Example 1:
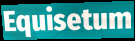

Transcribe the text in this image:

Equisetum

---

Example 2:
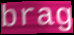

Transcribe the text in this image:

brag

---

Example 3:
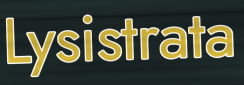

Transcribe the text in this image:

Lysistrata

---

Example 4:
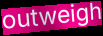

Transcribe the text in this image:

outweigh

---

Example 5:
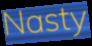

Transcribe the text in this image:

Nasty